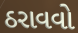
ઠરાવવો